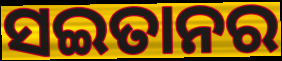
ସଇତାନର